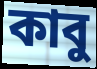
কাবু